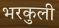
भरकुली